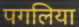
पगलिया